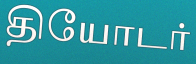
தியோடர்